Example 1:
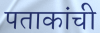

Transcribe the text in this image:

पताकांची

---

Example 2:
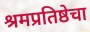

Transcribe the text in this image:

श्रमप्रतिष्ठेचा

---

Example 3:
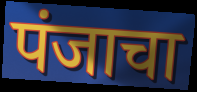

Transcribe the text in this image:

पंजाचा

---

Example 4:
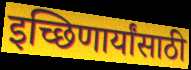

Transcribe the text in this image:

इच्छिणार्यांसाठी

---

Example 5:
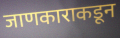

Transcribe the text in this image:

जाणकाराकडून